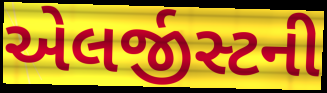
એલર્જીસ્ટની